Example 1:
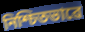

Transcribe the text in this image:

নিশ্চিতভাৱে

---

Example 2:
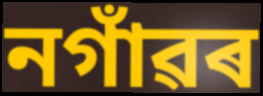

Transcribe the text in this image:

নগাঁৱৰ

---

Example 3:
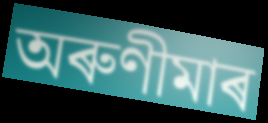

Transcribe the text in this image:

অৰুণীমাৰ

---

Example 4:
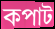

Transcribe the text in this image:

কপাট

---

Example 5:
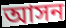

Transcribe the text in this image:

আসন